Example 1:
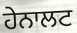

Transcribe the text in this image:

ਹੇਨਾਲਟ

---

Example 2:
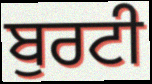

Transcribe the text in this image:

ਬੁਰਟੀ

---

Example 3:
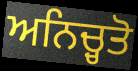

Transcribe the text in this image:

ਅਨਿਚ੍ਚਤੋ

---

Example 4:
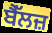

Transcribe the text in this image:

ਬੈੱਲਜ਼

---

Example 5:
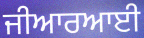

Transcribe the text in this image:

ਜੀਆਰਆਈ